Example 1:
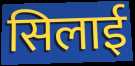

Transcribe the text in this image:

सिलाई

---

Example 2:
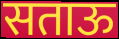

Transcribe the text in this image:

सताऊ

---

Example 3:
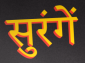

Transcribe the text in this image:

सुरंगें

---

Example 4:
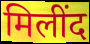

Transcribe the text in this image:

मिलींद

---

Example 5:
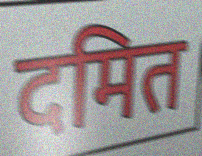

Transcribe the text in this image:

दमित